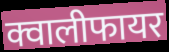
क्‍वालीफायर